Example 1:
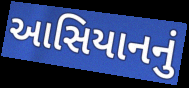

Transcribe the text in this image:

આસિયાનનું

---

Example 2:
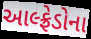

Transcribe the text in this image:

આલ્ફ્રેડોના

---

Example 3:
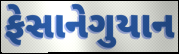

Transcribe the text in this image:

ફેસાનેગુયાન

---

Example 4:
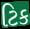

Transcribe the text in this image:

ટિક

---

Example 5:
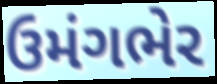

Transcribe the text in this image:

ઉમંગભેર